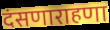
दंसणाराहणा